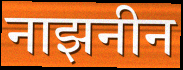
नाझनीन